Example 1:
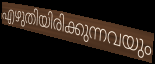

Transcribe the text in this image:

എഴുതിയിരിക്കുന്നവയും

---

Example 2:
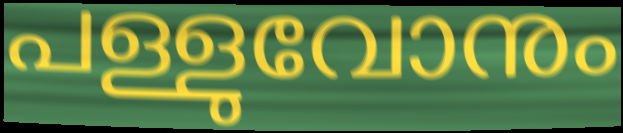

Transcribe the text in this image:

പള്ളുവോനും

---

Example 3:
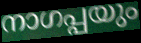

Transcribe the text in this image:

നാഗപ്പയും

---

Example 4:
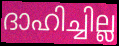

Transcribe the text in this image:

ദാഹിച്ചില്ല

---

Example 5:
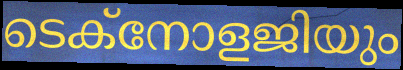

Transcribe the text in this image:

ടെക്നോളജിയും